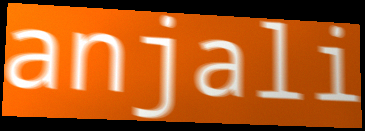
anjali